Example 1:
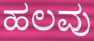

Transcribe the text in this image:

ಹಲವು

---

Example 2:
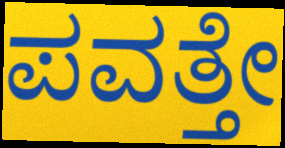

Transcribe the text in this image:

ಪವತ್ತೇ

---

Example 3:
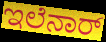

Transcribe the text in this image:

ಇಲೆನಾರ್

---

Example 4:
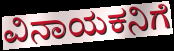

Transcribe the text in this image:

ವಿನಾಯಕನಿಗೆ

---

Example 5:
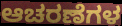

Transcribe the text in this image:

ಆಚರಣೆಗಳ